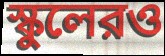
স্কুলেরও